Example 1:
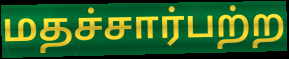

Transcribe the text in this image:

மதச்சார்பற்ற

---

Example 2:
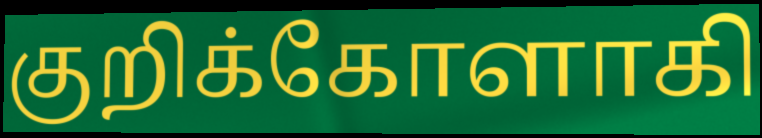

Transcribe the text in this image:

குறிக்கோளாகி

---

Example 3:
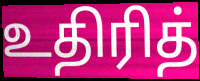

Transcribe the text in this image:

உதிரித்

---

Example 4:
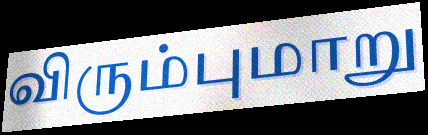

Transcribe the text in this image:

விரும்புமாறு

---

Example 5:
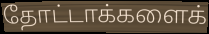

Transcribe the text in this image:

தோட்டாக்களைக்